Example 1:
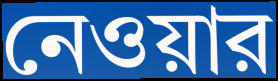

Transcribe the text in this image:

নেওয়ার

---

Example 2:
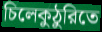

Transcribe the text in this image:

চিলেকুঠুরিতে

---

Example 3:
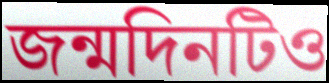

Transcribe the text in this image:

জন্মদিনটিও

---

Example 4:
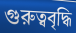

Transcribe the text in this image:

গুরুত্ববৃদ্ধি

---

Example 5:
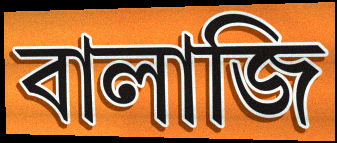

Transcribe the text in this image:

বালাজি